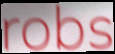
robs